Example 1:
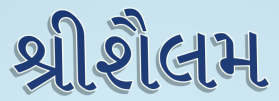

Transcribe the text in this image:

શ્રીશૈલમ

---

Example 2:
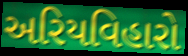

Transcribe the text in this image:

અરિયવિહારો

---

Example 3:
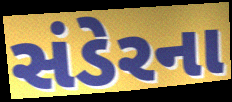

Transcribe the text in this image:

સંડેરના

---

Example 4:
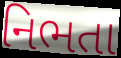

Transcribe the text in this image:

નિભતા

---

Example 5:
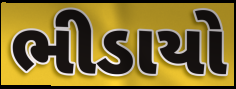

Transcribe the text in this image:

ભીડાયો